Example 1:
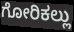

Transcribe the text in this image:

ಗೋರಿಕಲ್ಲು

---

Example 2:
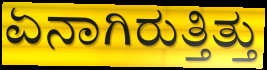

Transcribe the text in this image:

ಏನಾಗಿರುತ್ತಿತ್ತು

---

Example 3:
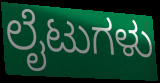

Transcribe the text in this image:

ಲೈಟುಗಳು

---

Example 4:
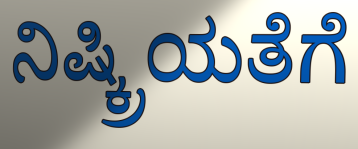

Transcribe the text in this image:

ನಿಷ್ಕ್ರಿಯತೆಗೆ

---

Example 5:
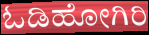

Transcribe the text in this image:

ಓಡಿಹೋಗಿರಿ